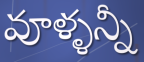
వూళ్ళన్నీ